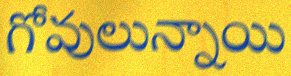
గోవులున్నాయి